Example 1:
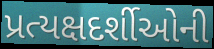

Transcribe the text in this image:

પ્રત્યક્ષદર્શીઓની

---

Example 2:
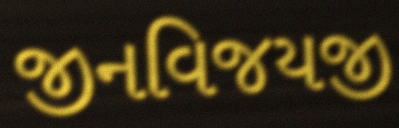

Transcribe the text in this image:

જીનવિજયજી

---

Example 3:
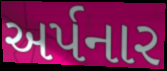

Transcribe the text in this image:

અર્પનાર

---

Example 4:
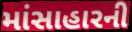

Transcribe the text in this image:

માંસાહારની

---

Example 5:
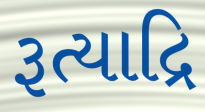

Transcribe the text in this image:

રૂત્યાદ્રિ